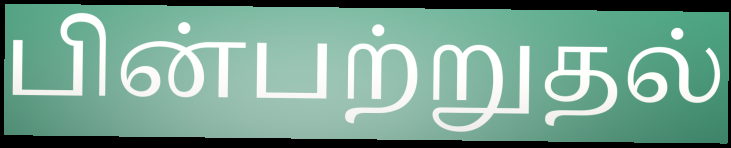
பின்பற்றுதல்